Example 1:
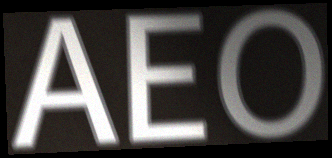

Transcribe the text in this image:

AEO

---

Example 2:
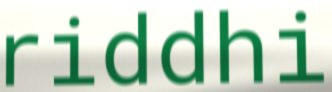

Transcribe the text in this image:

riddhi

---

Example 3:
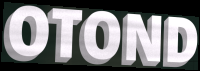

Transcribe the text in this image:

OTOND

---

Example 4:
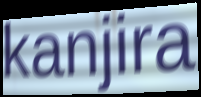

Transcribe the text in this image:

kanjira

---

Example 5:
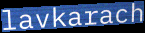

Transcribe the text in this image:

lavkarach